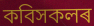
কবিসকলৰ